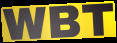
WBT